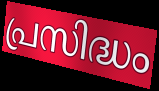
പ്രസിദ്ധം